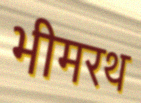
भीमरथ